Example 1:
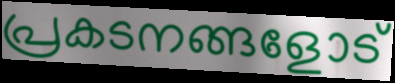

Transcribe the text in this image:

പ്രകടനങ്ങളോട്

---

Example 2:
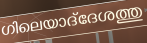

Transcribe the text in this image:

ഗിലെയാദ്‌ദേശത്തു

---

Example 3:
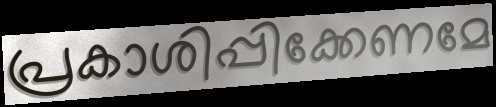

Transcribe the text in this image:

പ്രകാശിപ്പിക്കേണമേ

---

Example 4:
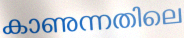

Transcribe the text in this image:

കാണുന്നതിലെ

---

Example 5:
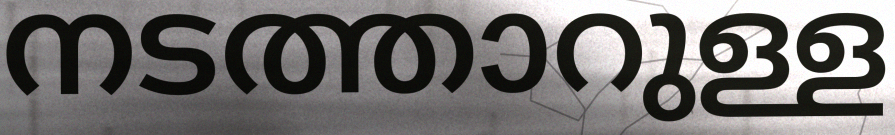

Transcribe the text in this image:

നടത്താറുള്ള